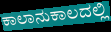
ಕಾಲಾನುಕಾಲದಲ್ಲಿ